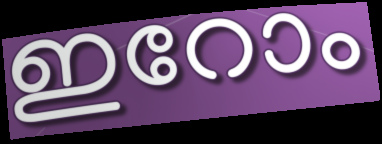
ഇറോം